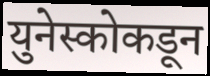
युनेस्कोकडून